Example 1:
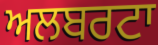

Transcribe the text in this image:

ਅਲਬਰਟਾ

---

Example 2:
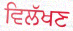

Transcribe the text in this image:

ਵਿਲੱਖਣ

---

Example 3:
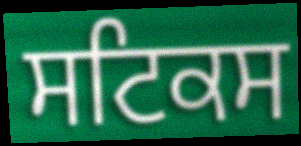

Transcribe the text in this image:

ਸਟਿਕਸ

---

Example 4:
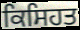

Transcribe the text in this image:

ਕਿਸਿਹਤ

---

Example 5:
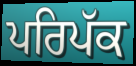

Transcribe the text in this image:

ਪਰਿਪੱਕ